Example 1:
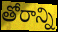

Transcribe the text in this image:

తోరాన్ని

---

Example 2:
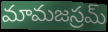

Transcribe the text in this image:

మామజస్రమ్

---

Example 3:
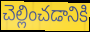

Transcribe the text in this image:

చెల్లించడానికి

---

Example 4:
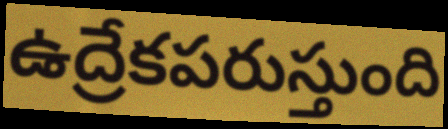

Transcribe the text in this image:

ఉద్రేకపరుస్తుంది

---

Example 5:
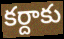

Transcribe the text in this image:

కర్దాకు